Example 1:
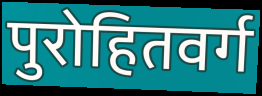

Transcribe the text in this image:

पुरोहितवर्ग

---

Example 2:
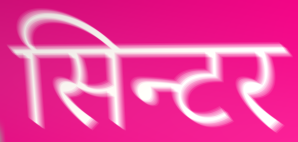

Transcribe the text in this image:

सिन्टर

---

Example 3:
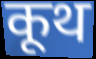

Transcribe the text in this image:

कूथ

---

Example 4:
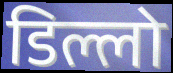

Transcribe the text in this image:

डिल्लो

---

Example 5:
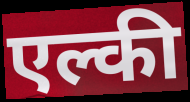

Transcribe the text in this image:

एल्की